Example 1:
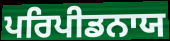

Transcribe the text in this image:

ਪਰਿਪੀਡਨਾਯ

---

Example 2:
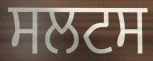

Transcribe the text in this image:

ਸਲਟਸ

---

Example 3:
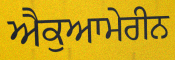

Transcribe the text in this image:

ਐਕੁਆਮੇਰੀਨ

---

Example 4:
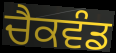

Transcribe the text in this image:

ਚੈਕਵੰਡ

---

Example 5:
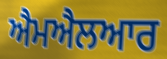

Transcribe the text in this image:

ਐਮਐਲਆਰ